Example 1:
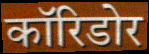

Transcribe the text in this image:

कॉरिडोर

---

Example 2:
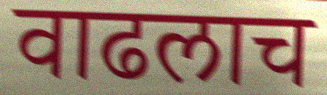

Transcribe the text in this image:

वाढलाच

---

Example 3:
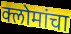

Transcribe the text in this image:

क्लोमांचा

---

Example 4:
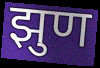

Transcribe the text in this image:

झुण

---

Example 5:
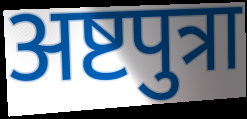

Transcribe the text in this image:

अष्टपुत्रा